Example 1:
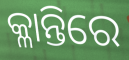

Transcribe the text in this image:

କ୍ଳାନ୍ତିରେ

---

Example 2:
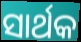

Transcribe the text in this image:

ସାର୍ଥକ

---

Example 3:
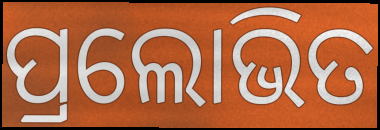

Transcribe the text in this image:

ପ୍ରଲୋଭିତ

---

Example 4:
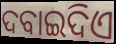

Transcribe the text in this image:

ଦବାଇଦିଏ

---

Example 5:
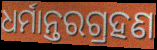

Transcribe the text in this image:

ଧର୍ମାନ୍ତରଗ୍ରହଣ